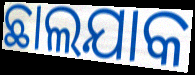
ଛାଲଯାକ